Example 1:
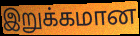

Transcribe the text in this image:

இறுக்கமான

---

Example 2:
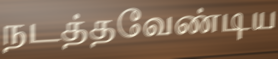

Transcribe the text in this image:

நடத்தவேண்டிய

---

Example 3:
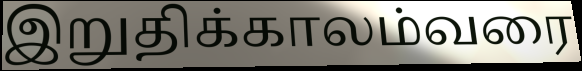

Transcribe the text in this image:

இறுதிக்காலம்வரை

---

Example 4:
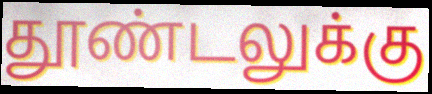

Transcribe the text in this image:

தூண்டலுக்கு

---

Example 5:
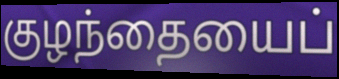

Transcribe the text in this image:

குழந்தையைப்